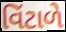
વિંટાળે